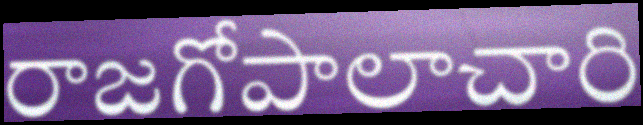
రాజగోపాలాచారి